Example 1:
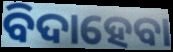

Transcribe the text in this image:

ବିଦାହେବା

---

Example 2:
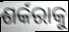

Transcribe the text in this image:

ଶର୍କରାକୁ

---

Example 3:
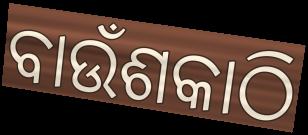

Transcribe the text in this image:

ବାଉଁଶକାଠି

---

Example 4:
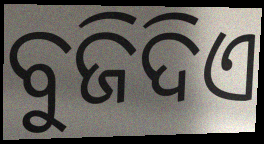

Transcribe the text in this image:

ବୁଜିଦିଏ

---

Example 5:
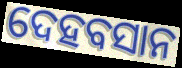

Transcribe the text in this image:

ଦେହବସାନ